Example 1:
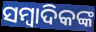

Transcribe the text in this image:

ସମ୍ୱାଦିକଙ୍କ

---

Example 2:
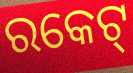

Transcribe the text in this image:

ରକେଟ୍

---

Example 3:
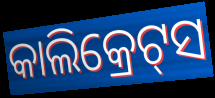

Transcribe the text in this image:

କାଲିକ୍ରେଟ୍‍ସ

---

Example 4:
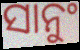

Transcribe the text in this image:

ସାନୁଂ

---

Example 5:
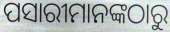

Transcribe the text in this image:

ପସାରୀମାନଙ୍କଠାରୁ